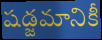
షడ్జమానికీ